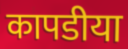
कापडीया